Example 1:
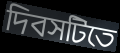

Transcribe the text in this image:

দিবসটিতে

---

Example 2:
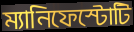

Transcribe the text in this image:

ম্যানিফেস্টোটি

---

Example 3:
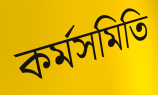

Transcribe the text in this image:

কর্মসমিতি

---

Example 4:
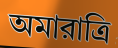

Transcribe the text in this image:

অমারাত্রি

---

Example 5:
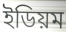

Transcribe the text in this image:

ইডিয়ম